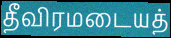
தீவிரமடையத்